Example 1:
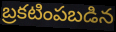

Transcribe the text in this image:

బ్రకటింపబడిన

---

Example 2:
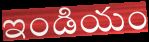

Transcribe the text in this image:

ఇండియం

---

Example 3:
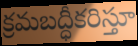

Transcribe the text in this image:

క్రమబద్ధీకరిస్తూ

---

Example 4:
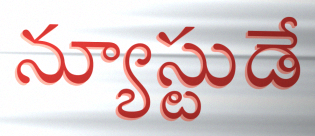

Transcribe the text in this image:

న్యూస్టుడే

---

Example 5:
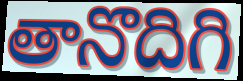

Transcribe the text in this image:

తానొదిగి